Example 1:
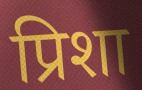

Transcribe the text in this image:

प्रिशा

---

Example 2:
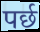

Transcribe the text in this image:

पर्छ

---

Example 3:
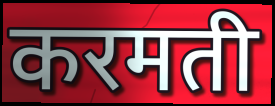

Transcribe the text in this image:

करमती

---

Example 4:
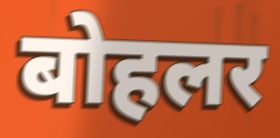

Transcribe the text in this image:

बोहलर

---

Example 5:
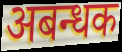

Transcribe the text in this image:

अबन्धक